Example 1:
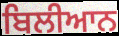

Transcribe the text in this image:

ਬਿਲੀਆਨ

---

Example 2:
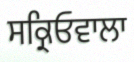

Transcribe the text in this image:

ਸਕ੍ਰਿਓਵਾਲਾ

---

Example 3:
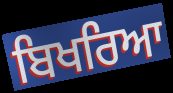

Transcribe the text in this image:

ਬਿਖਰਿਆ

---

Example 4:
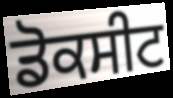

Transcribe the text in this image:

ਡੋਕਸੀਟ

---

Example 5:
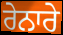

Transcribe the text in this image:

ਰੇਨਾਰੇ